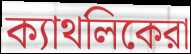
ক্যাথলিকেরা